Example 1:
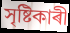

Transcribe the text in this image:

সৃষ্টিকাৰী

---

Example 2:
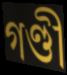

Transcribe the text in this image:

গণ্ডী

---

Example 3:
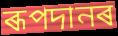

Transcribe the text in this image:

ৰূপদানৰ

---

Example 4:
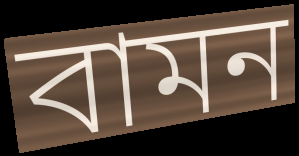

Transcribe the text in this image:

বামন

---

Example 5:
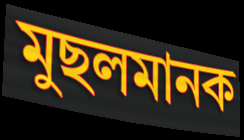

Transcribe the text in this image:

মুছলমানক